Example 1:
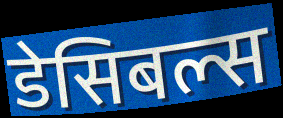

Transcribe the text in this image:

डेसिबल्स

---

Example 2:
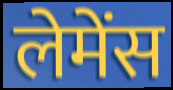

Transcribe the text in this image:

लेमेंस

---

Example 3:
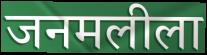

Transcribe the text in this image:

जनमलीला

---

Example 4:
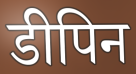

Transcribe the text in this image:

डीपिन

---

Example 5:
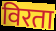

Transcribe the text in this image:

विरता